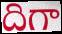
దిగా